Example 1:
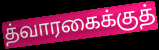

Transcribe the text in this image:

த்வாரகைக்குத்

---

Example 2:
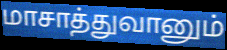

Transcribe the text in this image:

மாசாத்துவானும்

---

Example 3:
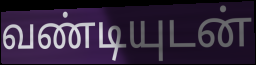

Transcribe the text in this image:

வண்டியுடன்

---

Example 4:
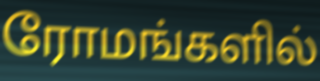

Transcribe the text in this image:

ரோமங்களில்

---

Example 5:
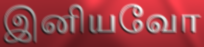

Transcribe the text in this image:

இனியவோ